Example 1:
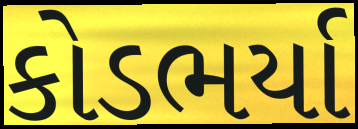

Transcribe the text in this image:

કોડભર્યા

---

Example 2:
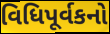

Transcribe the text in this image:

વિધિપૂર્વકનો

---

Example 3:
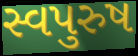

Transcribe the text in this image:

સ્વપુરુષ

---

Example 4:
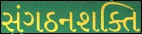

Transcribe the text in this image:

સંગઠનશક્તિ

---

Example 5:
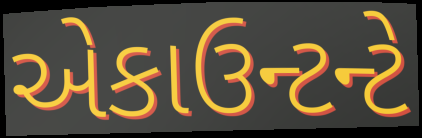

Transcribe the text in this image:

એકાઉન્ટન્ટે